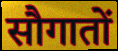
सौगातों